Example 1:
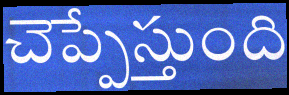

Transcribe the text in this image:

చెప్పేస్తుంది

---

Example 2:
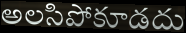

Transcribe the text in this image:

అలసిపోకూడదు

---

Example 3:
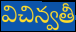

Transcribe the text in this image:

విచిన్వతీ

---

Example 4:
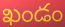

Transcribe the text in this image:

ఖండం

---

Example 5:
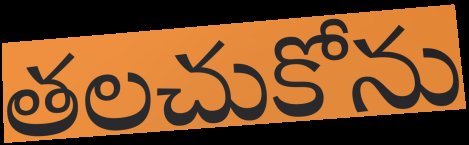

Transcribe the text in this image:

తలచుకోను